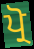
ਪ੍ਰੋ